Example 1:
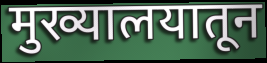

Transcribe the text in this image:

मुख्यालयातून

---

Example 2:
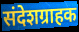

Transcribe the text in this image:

संदेशग्राहक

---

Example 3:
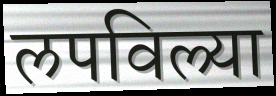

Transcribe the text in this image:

लपविल्या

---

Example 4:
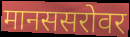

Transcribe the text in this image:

मानससरोवर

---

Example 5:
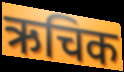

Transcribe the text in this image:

ऋचिक